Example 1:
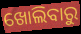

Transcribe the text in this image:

ଖୋଲିବାରୁ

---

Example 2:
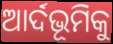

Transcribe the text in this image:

ଆର୍ଦଭୂମିକୁ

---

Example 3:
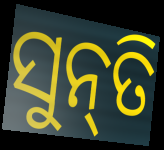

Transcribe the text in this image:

ସୁନ୍‌ତି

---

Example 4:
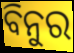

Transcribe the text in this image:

ବିନୁର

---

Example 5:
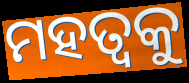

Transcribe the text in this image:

ମହତ୍ଵକୁ